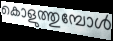
കൊളുത്തുമ്പോൾ